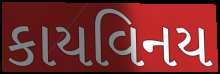
કાયવિનય